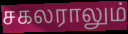
சகலராலும்